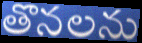
తొనలను